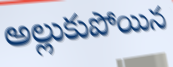
అల్లుకుపోయిన